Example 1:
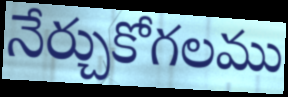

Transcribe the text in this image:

నేర్చుకోగలము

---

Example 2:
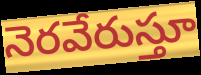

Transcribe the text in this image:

నెరవేరుస్తూ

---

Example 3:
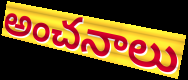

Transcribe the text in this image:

అంచనాలు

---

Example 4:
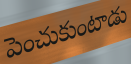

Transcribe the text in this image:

పెంచుకుంటాడు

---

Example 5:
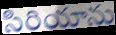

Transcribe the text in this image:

సిరియాను